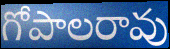
గోపాలరావు